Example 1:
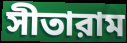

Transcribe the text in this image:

সীতারাম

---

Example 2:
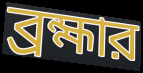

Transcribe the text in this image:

ব্রহ্মার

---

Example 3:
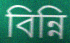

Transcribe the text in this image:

বিন্নি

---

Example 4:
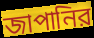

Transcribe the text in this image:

জাপানির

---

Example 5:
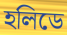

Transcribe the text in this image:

হলিডে